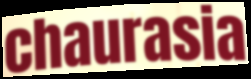
chaurasia